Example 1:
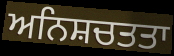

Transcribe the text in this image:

ਅਨਿਸ਼ਚਤਤਾ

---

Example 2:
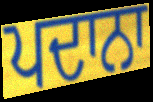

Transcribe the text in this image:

ਪਦਾਨਾ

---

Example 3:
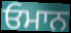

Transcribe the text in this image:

ਓਮਾਨ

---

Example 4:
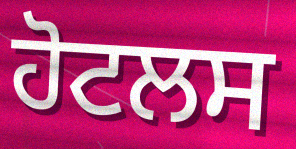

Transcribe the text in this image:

ਹੋਟਲਸ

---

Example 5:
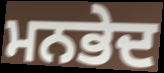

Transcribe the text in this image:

ਮਨਭੇਦ